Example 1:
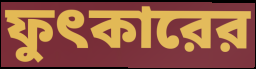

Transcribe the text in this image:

ফুৎকারের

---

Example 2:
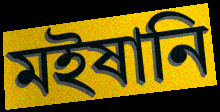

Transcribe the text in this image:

মইষানি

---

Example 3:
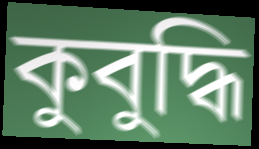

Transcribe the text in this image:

কুবুদ্ধি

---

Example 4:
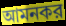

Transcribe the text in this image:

আমনকর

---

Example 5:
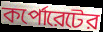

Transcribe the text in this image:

কর্পোরেটের